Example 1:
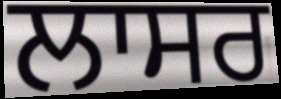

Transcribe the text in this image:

ਲਾਸਰ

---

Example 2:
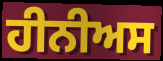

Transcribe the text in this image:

ਹੀਨੀਅਸ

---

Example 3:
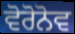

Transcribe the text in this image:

ਵੋਰੋਨੋਵ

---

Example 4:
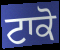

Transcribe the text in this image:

ਟਾਕੋ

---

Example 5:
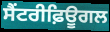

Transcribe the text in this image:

ਸੈਂਟਰੀਫ਼ਿਊਗਲ